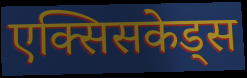
एक्सिसकेड्स